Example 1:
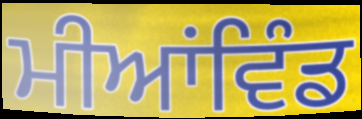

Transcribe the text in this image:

ਮੀਆਂਵਿੰਡ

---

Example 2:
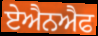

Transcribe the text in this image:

ਏਐਨਐਫ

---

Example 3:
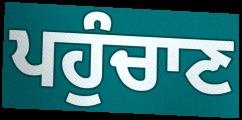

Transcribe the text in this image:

ਪਹੁੰਚਾਣ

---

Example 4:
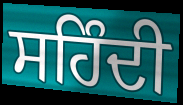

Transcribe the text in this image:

ਸਹਿੰਦੀ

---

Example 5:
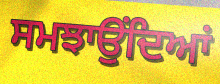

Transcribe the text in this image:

ਸਮਝਾਉਂਦਿਆਂ